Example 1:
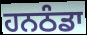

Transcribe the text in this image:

ਹਨਠੰਡਾ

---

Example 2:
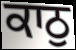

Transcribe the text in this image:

ਕਾਠੁ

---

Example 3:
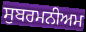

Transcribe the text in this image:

ਸੁਬਰਮਨੀਅਮ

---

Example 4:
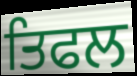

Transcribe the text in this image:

ਤਿਫਲ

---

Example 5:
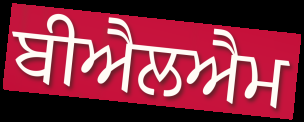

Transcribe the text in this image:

ਬੀਐਲਐਮ